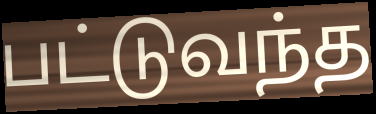
பட்டுவந்த